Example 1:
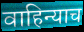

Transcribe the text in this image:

वाहिन्याच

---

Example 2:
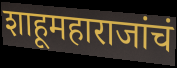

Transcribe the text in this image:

शाहूमहाराजांचं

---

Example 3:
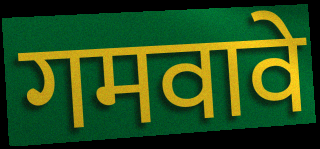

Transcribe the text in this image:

गमवावे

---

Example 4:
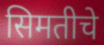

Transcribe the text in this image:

सिमतीचे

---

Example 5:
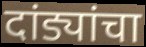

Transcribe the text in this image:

दांड्यांचा